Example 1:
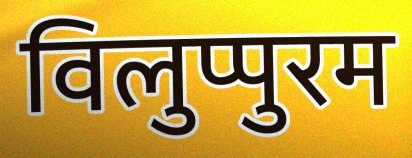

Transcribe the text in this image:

विलुप्पुरम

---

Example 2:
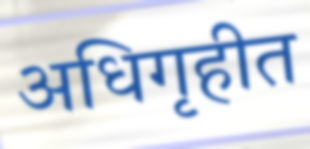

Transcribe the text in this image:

अधिगृहीत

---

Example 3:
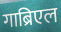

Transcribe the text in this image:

गाब्रिएल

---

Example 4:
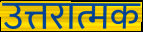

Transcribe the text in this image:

उत्तरात्मक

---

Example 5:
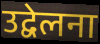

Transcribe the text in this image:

उद्वेलना